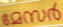
മേസർ